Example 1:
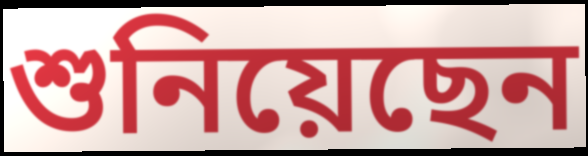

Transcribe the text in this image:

শুনিয়েছেন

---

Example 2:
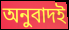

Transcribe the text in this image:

অনুবাদই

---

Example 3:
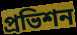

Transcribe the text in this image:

প্রভিশন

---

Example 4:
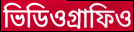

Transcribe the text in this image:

ভিডিওগ্রাফিও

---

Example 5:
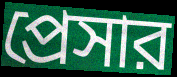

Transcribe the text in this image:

প্রেসার